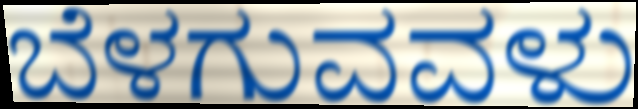
ಬೆಳಗುವವಳು